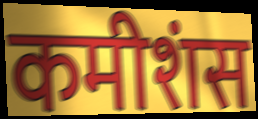
कमीशंस